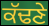
ਕੱਢਣੇ